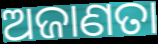
ଅଜାଣତା